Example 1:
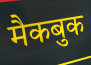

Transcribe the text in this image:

मैकबुक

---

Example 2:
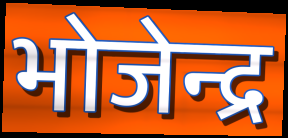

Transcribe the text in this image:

भोजेन्द्र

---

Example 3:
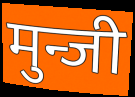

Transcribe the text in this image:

मुन्जी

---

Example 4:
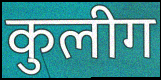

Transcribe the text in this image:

कुलीग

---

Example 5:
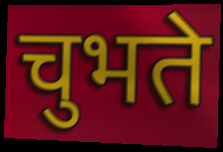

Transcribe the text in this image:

चुभते